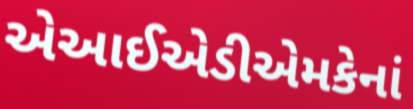
એઆઈએડીએમકેનાં